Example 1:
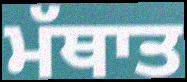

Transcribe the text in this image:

ਮੱਥਾਤ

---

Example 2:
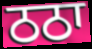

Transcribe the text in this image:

ਠਠਾ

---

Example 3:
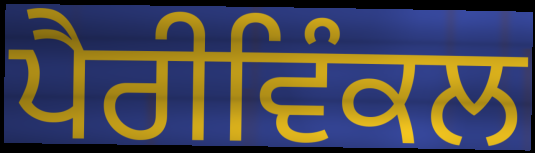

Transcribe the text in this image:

ਪੈਰੀਵਿੰਕਲ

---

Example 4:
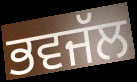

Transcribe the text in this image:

ਭਵਜੱਲ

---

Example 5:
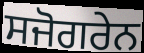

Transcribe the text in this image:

ਸਜੋਗਰੇਨ